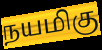
நயமிகு